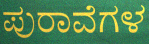
ಪುರಾವೆಗಳ